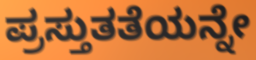
ಪ್ರಸ್ತುತತೆಯನ್ನೇ